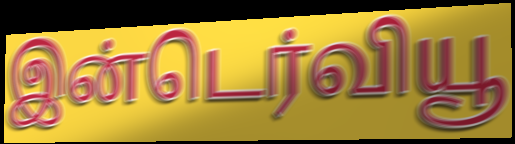
இன்டெர்வியூ